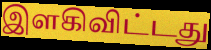
இளகிவிட்டது